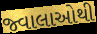
જ્વાલાઓથી